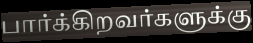
பார்க்கிறவர்களுக்கு